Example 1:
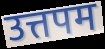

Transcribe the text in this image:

उत्तपम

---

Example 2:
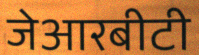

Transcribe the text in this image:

जेआरबीटी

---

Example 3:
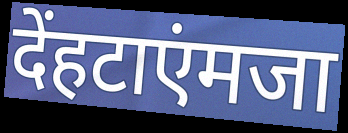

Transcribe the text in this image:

देंहटाएंमजा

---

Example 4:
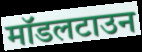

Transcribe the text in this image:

मॉडलटाउन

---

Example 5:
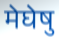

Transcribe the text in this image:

मेघेषु